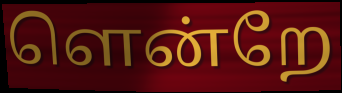
ளென்றே